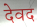
देवद